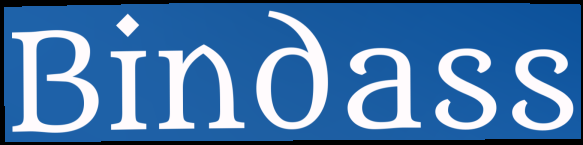
Bindass